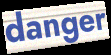
danger